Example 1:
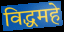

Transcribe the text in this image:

विद्धमहे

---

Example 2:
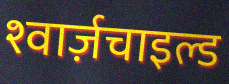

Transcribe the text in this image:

श्वार्ज़चाइल्ड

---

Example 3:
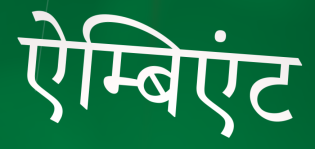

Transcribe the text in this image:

ऐम्बिएंट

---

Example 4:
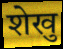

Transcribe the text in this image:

शेखु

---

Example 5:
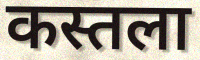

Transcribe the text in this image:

कस्तला